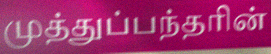
முத்துப்பந்தரின்